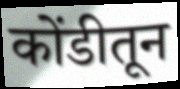
कोंडीतून